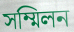
সম্মিলন